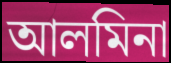
আলমিনা